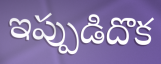
ఇప్పుడిదొక